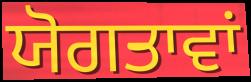
ਯੋਗਤਾਵਾਂ